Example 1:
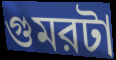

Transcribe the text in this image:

গুমরটা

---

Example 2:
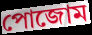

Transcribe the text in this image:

পোজোম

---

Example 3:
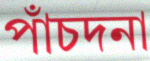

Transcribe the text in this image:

পাঁচদনা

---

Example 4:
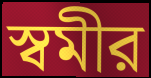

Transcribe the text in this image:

স্বমীর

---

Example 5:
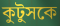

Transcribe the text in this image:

কুটুসকে